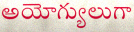
అయోగ్యులుగా